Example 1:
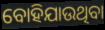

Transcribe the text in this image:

ବୋହିଯାଉଥିବା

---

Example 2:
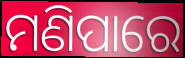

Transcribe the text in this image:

ମଣିପାରେ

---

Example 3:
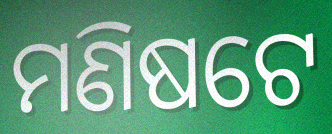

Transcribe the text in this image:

ମଣିଷଟେ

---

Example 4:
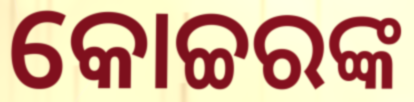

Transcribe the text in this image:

କୋଚ୍ଚରଙ୍କ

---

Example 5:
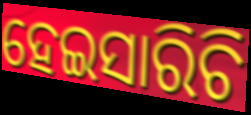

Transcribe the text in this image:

ହେଇସାରିଚି